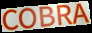
COBRA